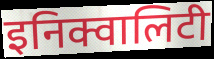
इनिक्वालिटी